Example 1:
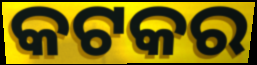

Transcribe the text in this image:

କଟକର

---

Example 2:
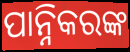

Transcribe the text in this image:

ପାନ୍ନିକରଙ୍କ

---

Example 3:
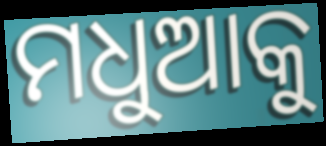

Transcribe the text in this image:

ମଧୁଆକୁ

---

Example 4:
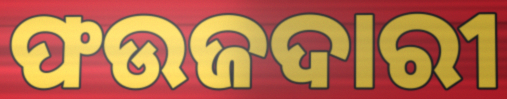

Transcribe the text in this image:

ଫଉଜଦାରୀ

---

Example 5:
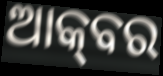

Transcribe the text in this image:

ଆକ୍‌ବର